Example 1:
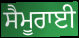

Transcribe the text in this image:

ਸੈਮੂਰਾਈ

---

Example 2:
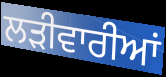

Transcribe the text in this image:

ਲੜੀਵਾਰੀਆਂ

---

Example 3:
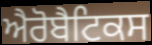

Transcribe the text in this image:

ਐਰੋਬੈਟਿਕਸ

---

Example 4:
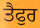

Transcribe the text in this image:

ਤੈਫੁਰ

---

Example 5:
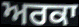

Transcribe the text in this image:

ਅਰਕਾ